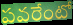
పవరేంటో